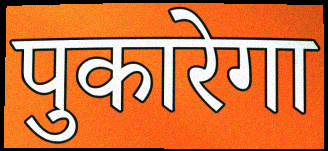
पुकारेगा